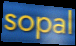
sopal